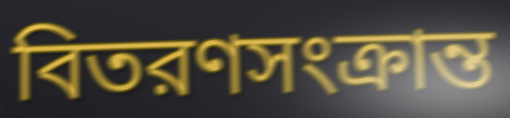
বিতরণসংক্রান্ত